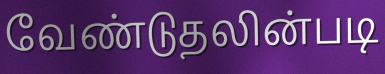
வேண்டுதலின்படி